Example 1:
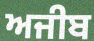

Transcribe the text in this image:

ਅਜੀਬ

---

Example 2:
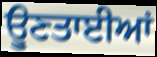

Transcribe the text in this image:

ਊਣਤਾਈਆਂ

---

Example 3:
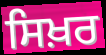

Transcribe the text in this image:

ਸਿਖ਼ਰ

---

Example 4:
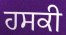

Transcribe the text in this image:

ਹਸਕੀ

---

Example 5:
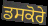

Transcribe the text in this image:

ਡਸਕੋਰੇ